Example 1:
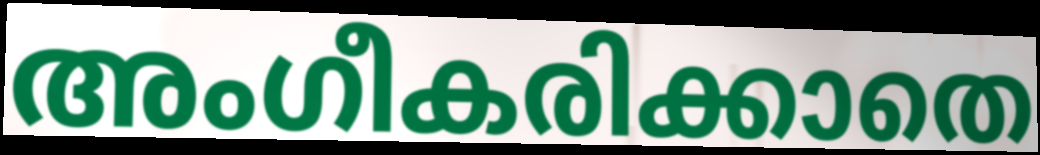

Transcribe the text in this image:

അംഗീകരിക്കാതെ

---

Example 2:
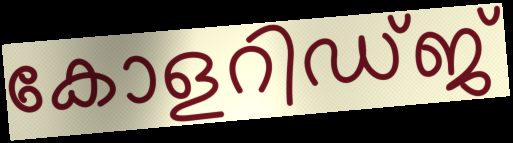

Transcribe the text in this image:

കോളറിഡ്ജ്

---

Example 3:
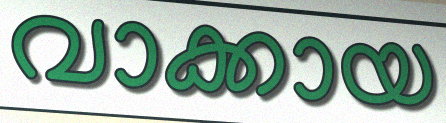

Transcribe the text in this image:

വാക്കായ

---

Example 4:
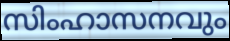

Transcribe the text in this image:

സിംഹാസനവും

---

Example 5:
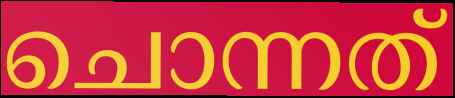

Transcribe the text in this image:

ചൊന്നത്